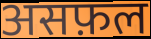
असफ़ल